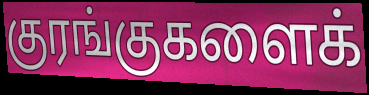
குரங்குகளைக்